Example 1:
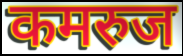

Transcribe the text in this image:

कमरुज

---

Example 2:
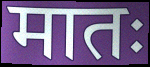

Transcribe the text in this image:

मातः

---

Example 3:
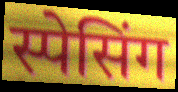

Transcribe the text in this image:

स्पेसिंग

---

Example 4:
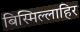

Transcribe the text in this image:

बिस्मिल्लाहिर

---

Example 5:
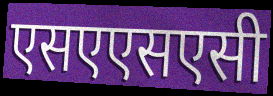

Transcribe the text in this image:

एसएएसएसी